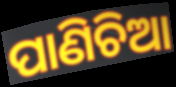
ପାଣିଚିଆ